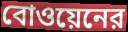
বোওয়েনের